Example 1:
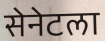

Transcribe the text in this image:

सेनेटला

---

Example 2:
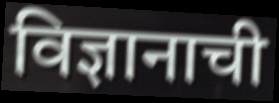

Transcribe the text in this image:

विज्ञानाची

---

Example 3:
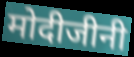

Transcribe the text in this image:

मोदीजीनी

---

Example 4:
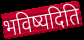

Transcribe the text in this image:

भविष्यदिति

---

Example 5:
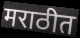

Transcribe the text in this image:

मराठीत